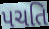
પચતિ